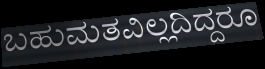
ಬಹುಮತವಿಲ್ಲದಿದ್ದರೂ